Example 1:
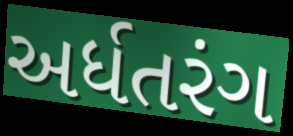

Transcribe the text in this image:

અર્ધતરંગ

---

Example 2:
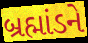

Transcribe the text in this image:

બ્રહ્માંડને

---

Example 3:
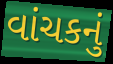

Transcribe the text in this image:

વાંચકનું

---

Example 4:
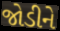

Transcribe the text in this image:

જોડીને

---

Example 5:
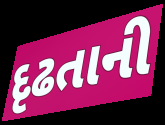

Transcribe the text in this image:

દૃઢતાની